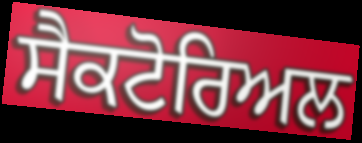
ਸੈਕਟੋਰਿਅਲ